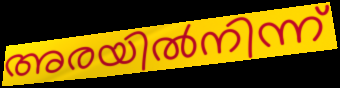
അരയിൽനിന്ന്